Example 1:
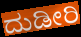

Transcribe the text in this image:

ದುಡೀರಿ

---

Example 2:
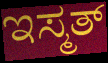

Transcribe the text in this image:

ಇಸ್ಮತ್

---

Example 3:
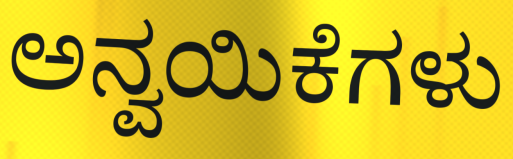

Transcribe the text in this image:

ಅನ್ವಯಿಕೆಗಳು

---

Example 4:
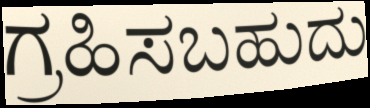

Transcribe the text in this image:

ಗ್ರಹಿಸಬಹುದು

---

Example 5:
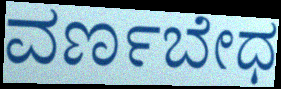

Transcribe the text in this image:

ವರ್ಣಬೇಧ